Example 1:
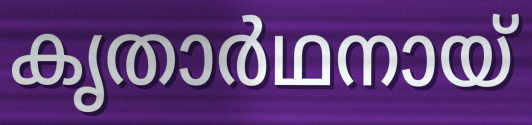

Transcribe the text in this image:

കൃതാർഥനായ്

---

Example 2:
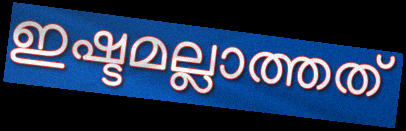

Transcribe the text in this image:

ഇഷ്ടമല്ലാത്തത്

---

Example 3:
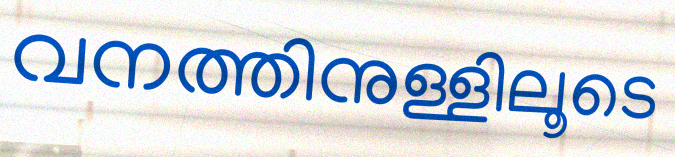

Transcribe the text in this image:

വനത്തിനുള്ളിലൂടെ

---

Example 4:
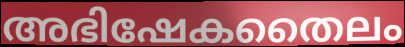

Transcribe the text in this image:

അഭിഷേകതൈലം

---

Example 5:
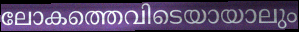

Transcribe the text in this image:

ലോകത്തെവിടെയായാലും